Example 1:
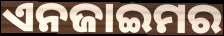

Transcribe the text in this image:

ଏନଜାଇମର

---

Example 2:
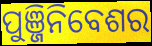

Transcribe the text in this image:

ପୁଞ୍ଜିନିବେଶର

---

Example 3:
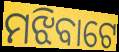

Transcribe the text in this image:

ମଝିବାଟେ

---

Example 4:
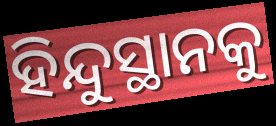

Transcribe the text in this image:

ହିନ୍ଦୁସ୍ଥାନକୁ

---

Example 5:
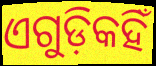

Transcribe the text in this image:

ଏଗୁଡ଼ିକହିଁ